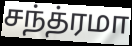
சந்த்ரமா